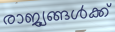
രാജ്യങ്ങൾക്ക്